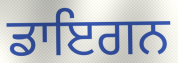
ਡਾਇਗਨ